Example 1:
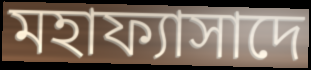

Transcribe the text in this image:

মহাফ্যাসাদে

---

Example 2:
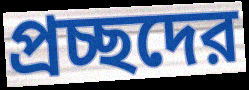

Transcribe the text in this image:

প্রচ্ছদের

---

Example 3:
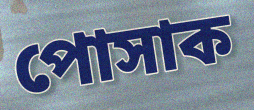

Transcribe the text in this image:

পোসাক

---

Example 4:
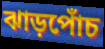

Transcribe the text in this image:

ঝাড়পোঁচ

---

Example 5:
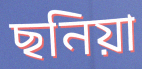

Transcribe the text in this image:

ছনিয়া